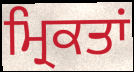
ਮ੍ਰਿਕਤਾਂ